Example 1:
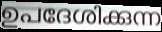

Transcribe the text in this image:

ഉപദേശിക്കുന്ന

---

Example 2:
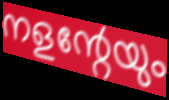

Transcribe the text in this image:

നളന്റേയും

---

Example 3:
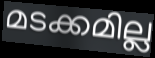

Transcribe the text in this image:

മടക്കമില്ല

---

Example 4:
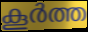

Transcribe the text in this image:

കൂർത്ത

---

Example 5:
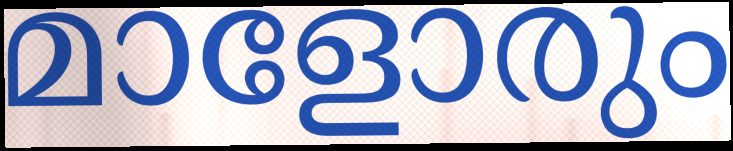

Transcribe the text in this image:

മാളോരും